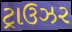
ટ્રાઉઝર